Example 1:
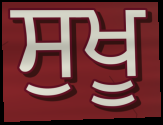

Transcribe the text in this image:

ਸੁਖੂ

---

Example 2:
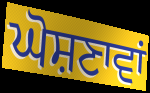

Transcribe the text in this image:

ਘੋਸ਼ਣਾਵਾਂ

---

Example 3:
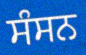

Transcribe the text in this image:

ਸੰਸਨ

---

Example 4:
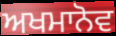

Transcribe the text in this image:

ਅਖਮਾਨੋਵ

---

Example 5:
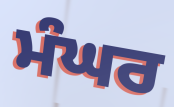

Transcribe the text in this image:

ਮੰਘਰ